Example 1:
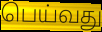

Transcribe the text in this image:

பெய்வது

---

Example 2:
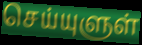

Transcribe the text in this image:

செய்யுளுள்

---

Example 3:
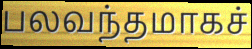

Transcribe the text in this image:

பலவந்தமாகச்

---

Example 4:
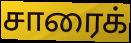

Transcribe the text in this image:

சாரைக்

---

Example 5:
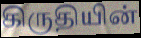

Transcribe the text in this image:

கிருதியின்